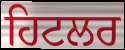
ਹਿਟਲਰ